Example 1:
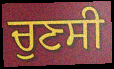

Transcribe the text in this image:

ਚੁਣਸੀ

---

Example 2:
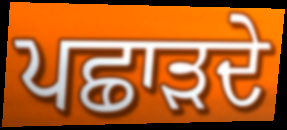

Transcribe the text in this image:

ਪਛਾੜਦੇ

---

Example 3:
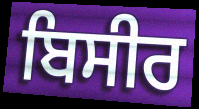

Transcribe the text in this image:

ਬਿਸੀਰ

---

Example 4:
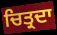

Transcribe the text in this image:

ਚਿਤ੍ਰਦਾ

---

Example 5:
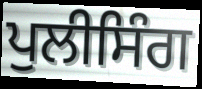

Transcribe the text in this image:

ਪੁਲੀਸਿੰਗ